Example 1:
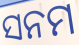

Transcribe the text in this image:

ସନମ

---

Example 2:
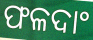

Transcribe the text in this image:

ଫଳଦାଂ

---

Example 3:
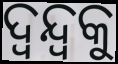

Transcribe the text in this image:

ଦ୍ଵନ୍ଦ୍ଵକୁ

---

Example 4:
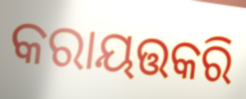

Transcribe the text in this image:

କରାୟତ୍ତକରି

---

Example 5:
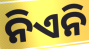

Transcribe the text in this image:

ନିଏନି